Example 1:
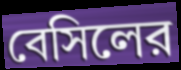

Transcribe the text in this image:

বেসিলের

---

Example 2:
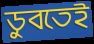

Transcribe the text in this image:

ডুবতেই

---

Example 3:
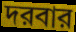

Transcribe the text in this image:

দরবার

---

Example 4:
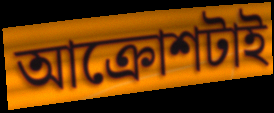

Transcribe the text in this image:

আক্রোশটাই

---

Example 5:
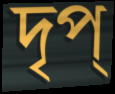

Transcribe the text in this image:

দৃপ্